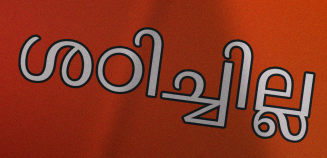
ശഠിച്ചില്ല